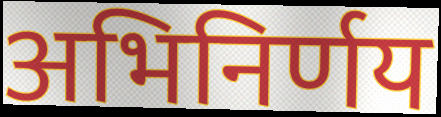
अभिनिर्णय